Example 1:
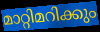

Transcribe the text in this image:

മാറ്റിമറിക്കും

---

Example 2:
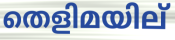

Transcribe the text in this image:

തെളിമയില്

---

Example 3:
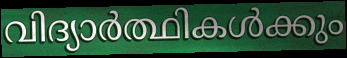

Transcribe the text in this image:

വിദ്യാർത്ഥികൾക്കും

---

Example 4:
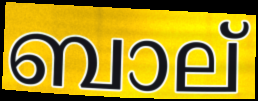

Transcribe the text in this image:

ബാല്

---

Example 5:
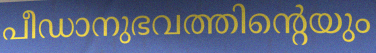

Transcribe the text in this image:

പീഡാനുഭവത്തിന്റെയും